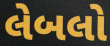
લેબલો